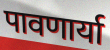
पावणार्या